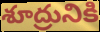
శూద్రునికి